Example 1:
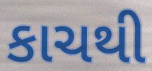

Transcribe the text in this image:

કાચથી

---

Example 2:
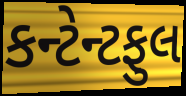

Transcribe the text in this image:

કન્ટેન્ટફુલ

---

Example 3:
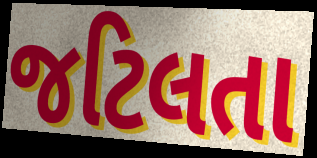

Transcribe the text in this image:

જટિલતા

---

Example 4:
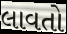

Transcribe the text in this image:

લાવતો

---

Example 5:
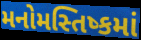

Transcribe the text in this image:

મનોમસ્તિષ્કમાં